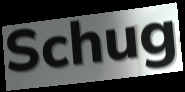
Schug